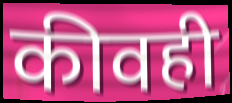
कीवही